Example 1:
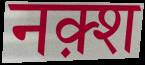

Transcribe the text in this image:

नक़्श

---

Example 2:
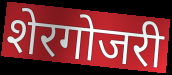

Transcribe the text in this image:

शेरगोजरी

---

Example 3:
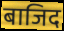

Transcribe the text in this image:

बाजिद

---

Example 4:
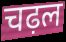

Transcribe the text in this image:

चढ़ल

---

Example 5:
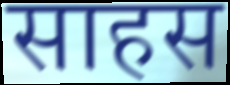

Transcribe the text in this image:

साहस